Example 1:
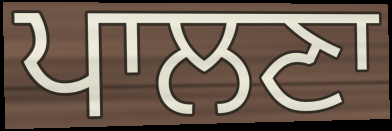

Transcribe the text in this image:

ਪਾਲਣਾ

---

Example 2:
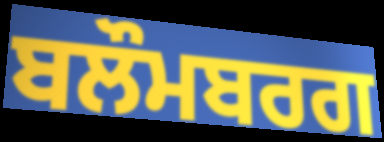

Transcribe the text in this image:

ਬਲੌਮਬਰਗ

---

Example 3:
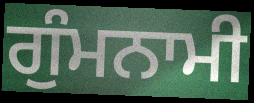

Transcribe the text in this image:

ਗੁੰਮਨਾਮੀ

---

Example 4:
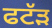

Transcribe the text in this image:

ਫਟੱੜ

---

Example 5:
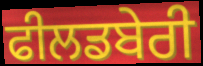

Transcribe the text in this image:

ਫੀਲਡਬੇਰੀ